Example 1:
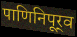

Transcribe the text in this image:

पाणिनिपूर्व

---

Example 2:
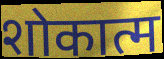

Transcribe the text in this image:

शोकात्म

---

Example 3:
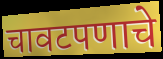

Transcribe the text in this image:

चावटपणाचे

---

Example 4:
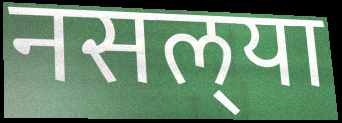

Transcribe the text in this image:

नसल्या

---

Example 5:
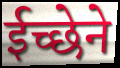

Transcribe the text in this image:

ईच्छेने